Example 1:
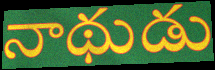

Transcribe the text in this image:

నాథుడు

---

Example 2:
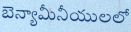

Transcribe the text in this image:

బెన్యామీనీయులలో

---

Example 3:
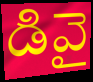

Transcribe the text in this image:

డివై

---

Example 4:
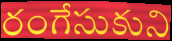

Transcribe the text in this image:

రంగేసుకుని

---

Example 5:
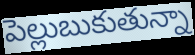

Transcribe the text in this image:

పెల్లుబుకుతున్నా